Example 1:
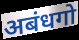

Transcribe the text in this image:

अबंधगो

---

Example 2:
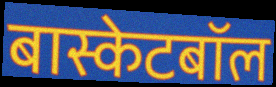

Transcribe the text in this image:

बास्‍केटबॉल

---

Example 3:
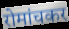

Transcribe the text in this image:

रोमांचकर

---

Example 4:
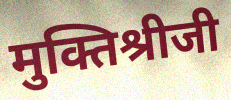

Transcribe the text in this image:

मुक्तिश्रीजी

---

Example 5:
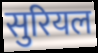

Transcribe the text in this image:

सुरियल